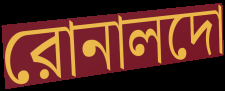
রোনালদো